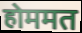
होममत